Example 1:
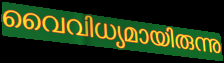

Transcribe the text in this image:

വൈവിധ്യമായിരുന്നു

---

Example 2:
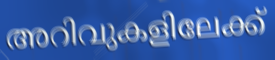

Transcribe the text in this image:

അറിവുകളിലേക്ക്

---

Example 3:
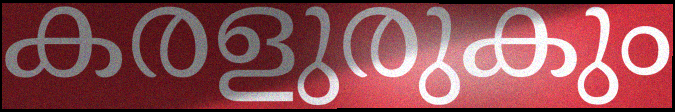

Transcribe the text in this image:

കരളുരുകും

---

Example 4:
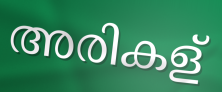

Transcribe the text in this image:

അരികള്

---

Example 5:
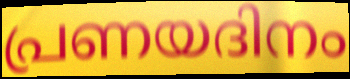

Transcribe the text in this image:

പ്രണയദിനം